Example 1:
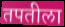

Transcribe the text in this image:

तपतीला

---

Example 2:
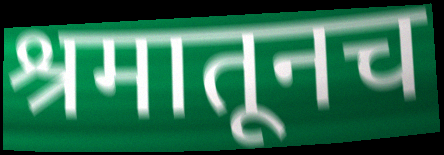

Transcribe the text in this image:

श्रमातूनच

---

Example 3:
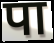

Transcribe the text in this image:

पा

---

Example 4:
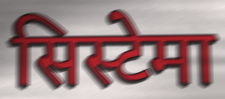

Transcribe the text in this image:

सिस्टेमा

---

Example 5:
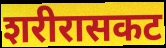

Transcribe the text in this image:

शरीरासकट